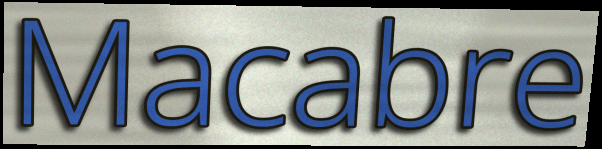
Macabre